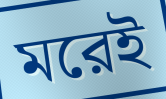
মরেই